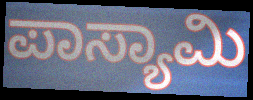
ಪಾಸ್ಯಾಮಿ